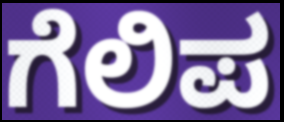
ಗೆಲಿಪ